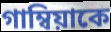
গাম্বিয়াকে